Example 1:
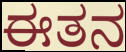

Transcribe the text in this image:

ಈತನ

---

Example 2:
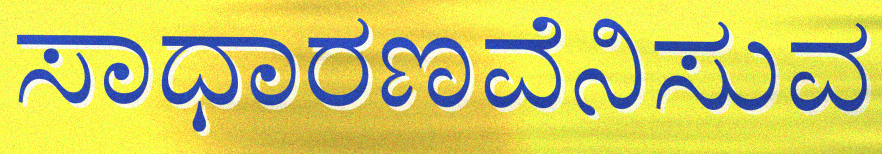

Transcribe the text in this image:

ಸಾಧಾರಣವೆನಿಸುವ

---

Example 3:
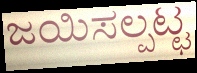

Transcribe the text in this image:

ಜಯಿಸಲ್ಪಟ್ಟ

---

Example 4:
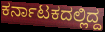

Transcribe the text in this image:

ಕರ್ನಾಟಕದಲ್ಲಿದ್ದ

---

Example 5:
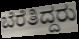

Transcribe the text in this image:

ಬೆರೆತಿದ್ದರು